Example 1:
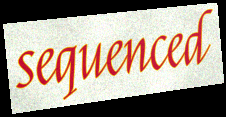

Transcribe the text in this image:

sequenced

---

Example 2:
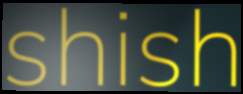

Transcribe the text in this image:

shish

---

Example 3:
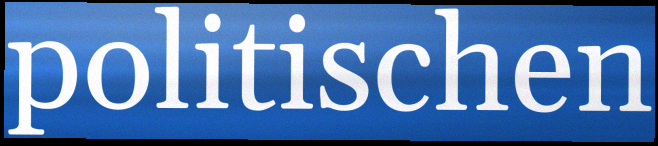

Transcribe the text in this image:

politischen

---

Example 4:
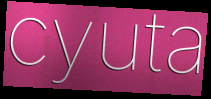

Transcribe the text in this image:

cyuta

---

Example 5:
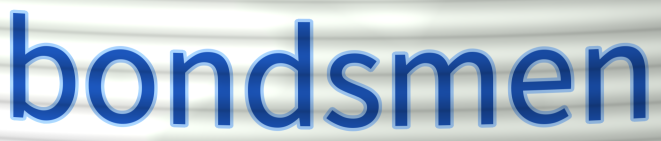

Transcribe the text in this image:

bondsmen